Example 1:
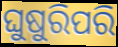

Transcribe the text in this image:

ଘୁଷୁରିପରି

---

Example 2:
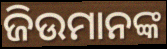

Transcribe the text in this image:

ଜିଉମାନଙ୍କ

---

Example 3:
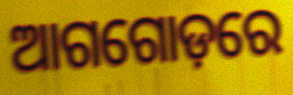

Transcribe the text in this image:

ଆଗଗୋଡ଼ରେ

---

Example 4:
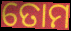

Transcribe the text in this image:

ତୋମ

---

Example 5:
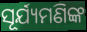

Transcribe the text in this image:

ସୂର୍ଯ୍ୟମଣିଙ୍କ